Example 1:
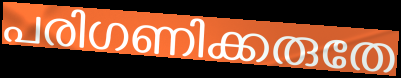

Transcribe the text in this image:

പരിഗണിക്കരുതേ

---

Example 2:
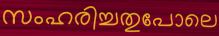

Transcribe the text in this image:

സംഹരിച്ചതുപോലെ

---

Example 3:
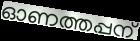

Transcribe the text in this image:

ഓണത്തപ്പന്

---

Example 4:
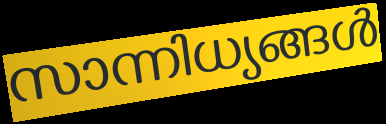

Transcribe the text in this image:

സാന്നിധ്യങ്ങൾ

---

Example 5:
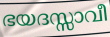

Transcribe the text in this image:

ഭയദസ്സാവീ